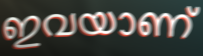
ഇവയാണ്